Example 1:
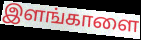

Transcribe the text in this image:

இளங்காளை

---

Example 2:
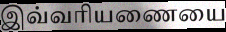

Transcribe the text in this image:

இவ்வரியணையை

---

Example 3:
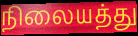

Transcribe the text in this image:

நிலையத்து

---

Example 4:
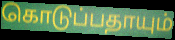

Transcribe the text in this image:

கொடுப்பதாயும்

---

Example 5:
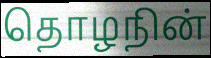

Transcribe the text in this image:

தொழநின்